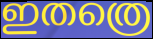
ഇതത്രെ